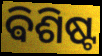
ଵିଶିଷ୍ଟ